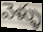
వెళ్ళు